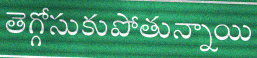
తెగ్గోసుకుపోతున్నాయి